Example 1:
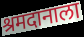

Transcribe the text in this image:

श्रमदानाला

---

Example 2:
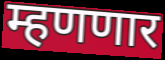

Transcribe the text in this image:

म्हणणार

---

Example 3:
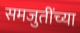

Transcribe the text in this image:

समजुतींच्या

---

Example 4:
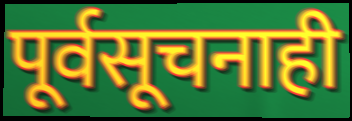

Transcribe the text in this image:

पूर्वसूचनाही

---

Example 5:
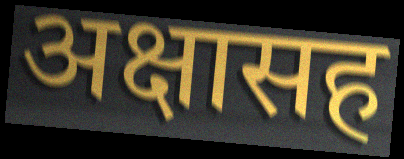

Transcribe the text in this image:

अक्षासह